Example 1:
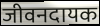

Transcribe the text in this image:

जीवनदायक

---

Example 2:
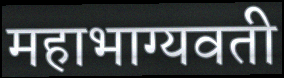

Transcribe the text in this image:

महाभाग्यवती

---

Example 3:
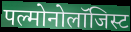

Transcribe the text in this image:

पल्मोनोलॉजिस्ट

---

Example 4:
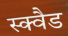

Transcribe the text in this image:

स्क्वैड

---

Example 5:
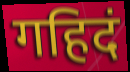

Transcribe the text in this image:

गहिदं